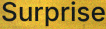
Surprise